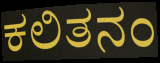
ಕಲಿತನಂ